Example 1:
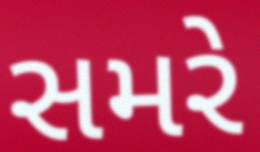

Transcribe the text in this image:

સમરે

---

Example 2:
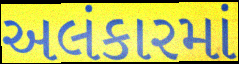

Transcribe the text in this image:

અલંકારમાં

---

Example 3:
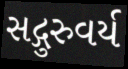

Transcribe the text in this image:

સદ્ગુરુવર્ય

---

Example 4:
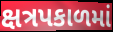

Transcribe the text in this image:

ક્ષત્રપકાળમાં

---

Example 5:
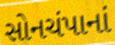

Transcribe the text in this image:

સોનચંપાનાં